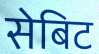
सेबिट